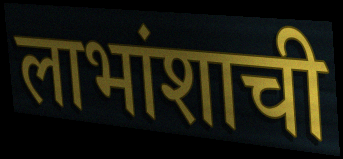
लाभांशाची